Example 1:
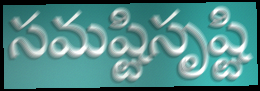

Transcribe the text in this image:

సమష్టిసృష్టి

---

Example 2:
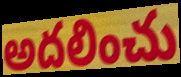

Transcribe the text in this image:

అదలించు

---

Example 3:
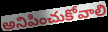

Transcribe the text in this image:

అనిపించుకోవాలి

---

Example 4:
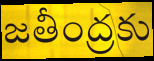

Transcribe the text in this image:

జతీంద్రకు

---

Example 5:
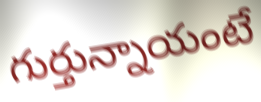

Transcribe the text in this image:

గుర్తున్నాయంటే